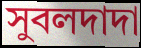
সুবলদাদা